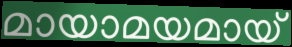
മായാമയമായ്